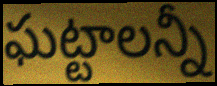
ఘట్టాలన్నీ